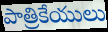
పాత్రికేయులు